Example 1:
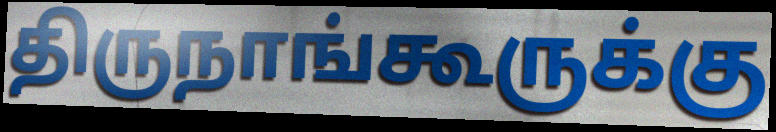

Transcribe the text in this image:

திருநாங்கூருக்கு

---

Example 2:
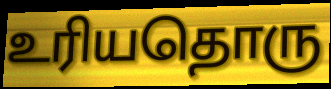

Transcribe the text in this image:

உரியதொரு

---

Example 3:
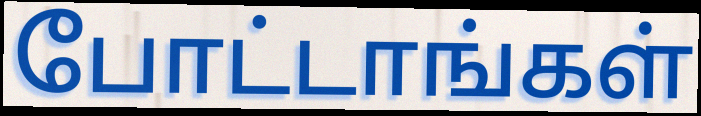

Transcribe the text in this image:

போட்டாங்கள்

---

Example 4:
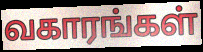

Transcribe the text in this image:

வகாரங்கள்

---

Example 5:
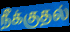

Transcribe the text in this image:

நீக்குதல்